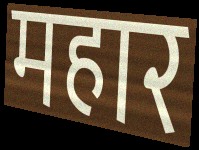
महार